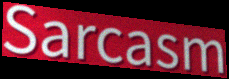
Sarcasm